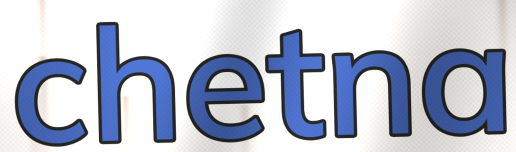
chetna